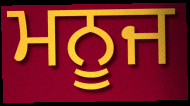
ਮਨੂਜ